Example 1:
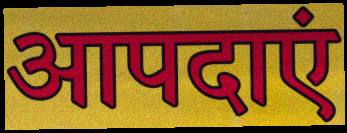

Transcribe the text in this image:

आपदाएं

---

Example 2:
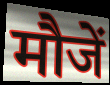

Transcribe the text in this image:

मौजें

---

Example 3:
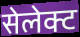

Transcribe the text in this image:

सेलेक्ट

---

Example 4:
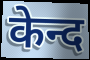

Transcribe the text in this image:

केन्द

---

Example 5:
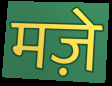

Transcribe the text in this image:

मज़े